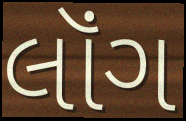
લૉંગ